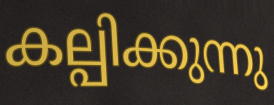
കല്പിക്കുന്നു